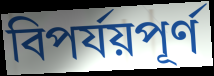
বিপর্যয়পূর্ণ